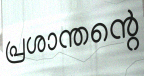
പ്രശാന്തന്റെ